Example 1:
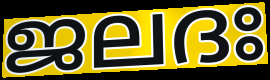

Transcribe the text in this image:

ജലദഃ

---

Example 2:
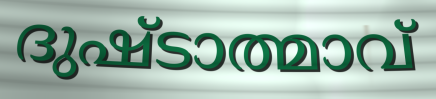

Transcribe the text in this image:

ദുഷ്ടാത്മാവ്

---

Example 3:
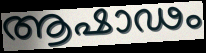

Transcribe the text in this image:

ആഷാഢം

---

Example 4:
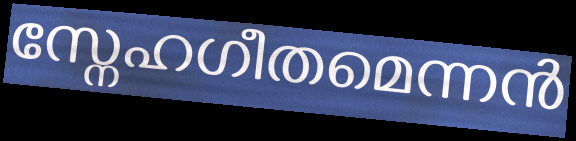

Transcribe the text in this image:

സ്നേഹഗീതമെന്നൻ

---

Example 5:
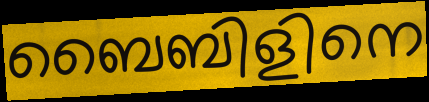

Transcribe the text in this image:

ബൈബിളിനെ